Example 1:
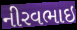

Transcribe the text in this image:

નીરવભાઇ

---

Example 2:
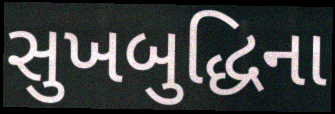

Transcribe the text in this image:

સુખબુદ્ધિના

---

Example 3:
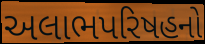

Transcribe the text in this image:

અલાભપરિષહનો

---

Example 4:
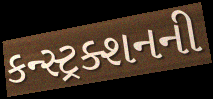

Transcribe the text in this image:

કન્સ્ટ્રક્શનની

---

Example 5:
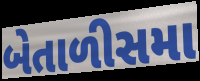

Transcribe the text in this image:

બેતાળીસમા